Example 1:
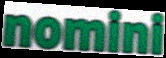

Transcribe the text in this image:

nomini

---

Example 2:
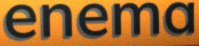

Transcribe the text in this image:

enema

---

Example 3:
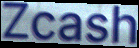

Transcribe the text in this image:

Zcash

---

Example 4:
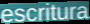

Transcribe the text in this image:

escritura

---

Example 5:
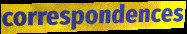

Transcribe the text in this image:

correspondences